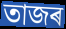
তাজৰ